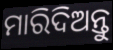
ମାରିଦିଅନ୍ତୁ